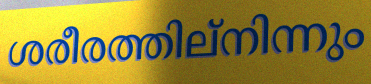
ശരീരത്തില്നിന്നും